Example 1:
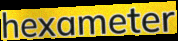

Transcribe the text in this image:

hexameter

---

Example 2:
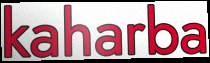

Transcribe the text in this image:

kaharba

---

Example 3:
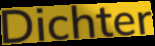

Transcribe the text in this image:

Dichter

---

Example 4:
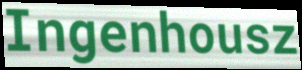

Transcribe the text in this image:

Ingenhousz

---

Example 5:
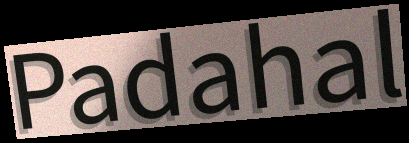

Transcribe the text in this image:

Padahal